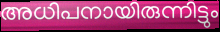
അധിപനായിരുന്നിട്ടും